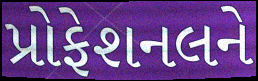
પ્રોફેશનલને